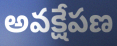
అవక్షేపణ